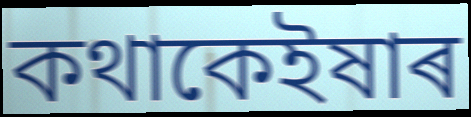
কথাকেইষাৰ